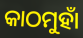
କାଠମୁହାଁ